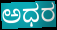
ಅಧರ